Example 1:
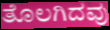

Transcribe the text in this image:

ತೊಲಗಿದವು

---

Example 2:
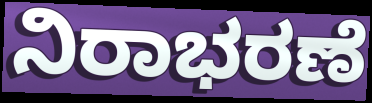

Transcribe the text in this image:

ನಿರಾಭರಣೆ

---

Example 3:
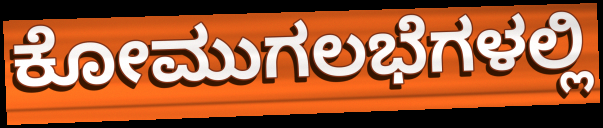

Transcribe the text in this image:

ಕೋಮುಗಲಭೆಗಳಲ್ಲಿ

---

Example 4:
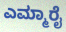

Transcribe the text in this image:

ಎಮ್ಮಾರೈ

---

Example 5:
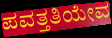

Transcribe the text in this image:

ಪವತ್ತತಿಯೇವ